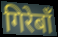
गिरेबाँ